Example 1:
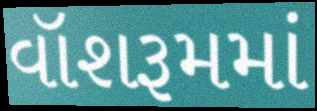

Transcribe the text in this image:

વૉશરૂમમાં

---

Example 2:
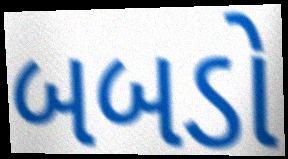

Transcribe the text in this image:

બબડો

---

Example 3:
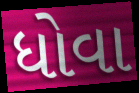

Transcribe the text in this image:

ધોવા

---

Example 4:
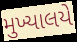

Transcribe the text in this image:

મુખ્યાલયે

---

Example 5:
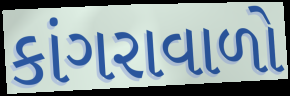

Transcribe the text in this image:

કાંગરાવાળો